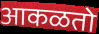
आकळतो